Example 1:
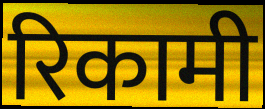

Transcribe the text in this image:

रिकामी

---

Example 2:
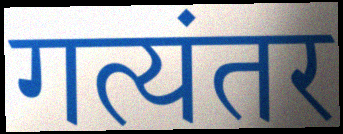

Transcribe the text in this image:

गत्यंतर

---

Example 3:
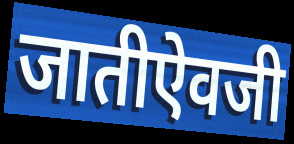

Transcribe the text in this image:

जातीऐवजी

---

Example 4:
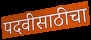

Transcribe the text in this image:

पदवीसाठीचा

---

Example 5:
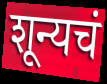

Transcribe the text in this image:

शून्यचं